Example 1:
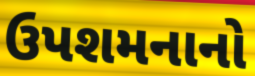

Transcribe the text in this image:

ઉપશમનાનો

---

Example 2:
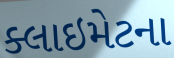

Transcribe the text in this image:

ક્લાઇમેટના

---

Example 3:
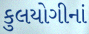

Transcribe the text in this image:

કુલયોગીનાં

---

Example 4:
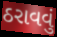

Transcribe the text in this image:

ઠરાવવું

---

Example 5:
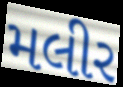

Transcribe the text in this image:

મલીર